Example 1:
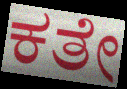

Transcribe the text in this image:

ಕತೇ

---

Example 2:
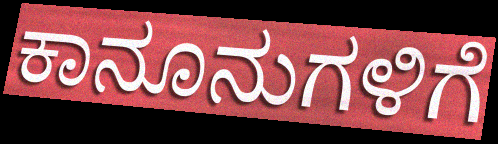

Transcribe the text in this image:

ಕಾನೂನುಗಳಿಗೆ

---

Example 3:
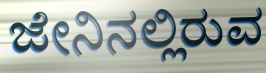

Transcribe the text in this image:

ಜೇನಿನಲ್ಲಿರುವ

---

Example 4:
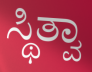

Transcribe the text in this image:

ಸ್ಥಿತ್ವಾ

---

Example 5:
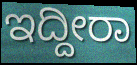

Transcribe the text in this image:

ಇದ್ದೀರಾ